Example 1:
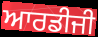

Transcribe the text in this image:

ਆਰਡੀਜੀ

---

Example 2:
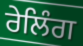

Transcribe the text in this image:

ਰੇਲਿੰਗ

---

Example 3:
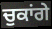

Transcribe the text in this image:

ਚੁਕਾਂਗੇ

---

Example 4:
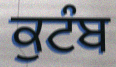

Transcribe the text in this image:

ਕੁਟੰਬ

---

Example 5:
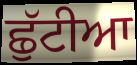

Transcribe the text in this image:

ਛੁੱਟੀਆ